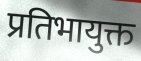
प्रतिभायुक्त